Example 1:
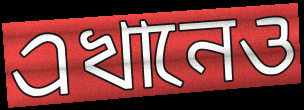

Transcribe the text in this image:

এখানেও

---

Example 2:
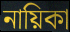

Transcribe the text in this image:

নায়িকা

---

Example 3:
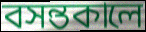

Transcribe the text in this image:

বসন্তকালে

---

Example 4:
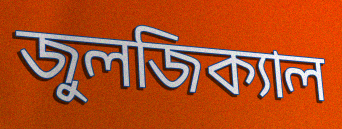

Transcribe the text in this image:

জুলজিক্যাল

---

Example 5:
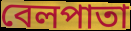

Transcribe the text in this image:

বেলপাতা